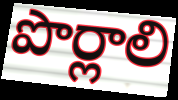
పొర్లాలి